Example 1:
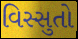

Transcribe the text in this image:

વિસ્સુતો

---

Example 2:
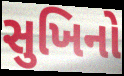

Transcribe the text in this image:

સુખિનો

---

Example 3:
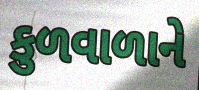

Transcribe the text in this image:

કુળવાળાને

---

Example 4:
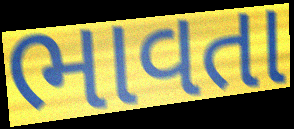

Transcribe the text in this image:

ભાવતા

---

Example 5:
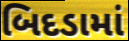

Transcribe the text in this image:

બિદડામાં